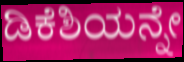
ಡಿಕೆಶಿಯನ್ನೇ